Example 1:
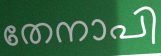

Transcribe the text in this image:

തേനാപി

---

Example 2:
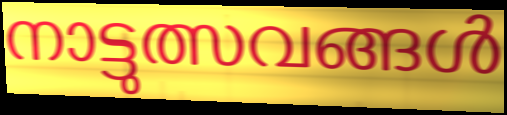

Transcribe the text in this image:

നാട്ടുത്സവങ്ങൾ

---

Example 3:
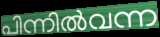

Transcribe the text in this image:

പിന്നിൽവന്ന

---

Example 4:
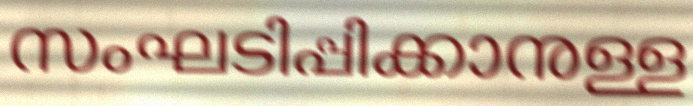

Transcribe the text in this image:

സംഘടിപ്പിക്കാനുള്ള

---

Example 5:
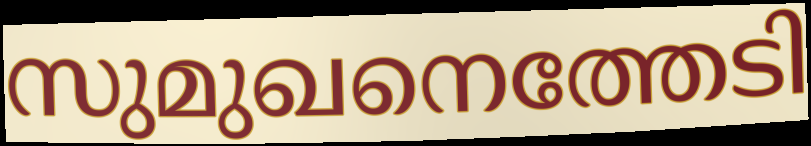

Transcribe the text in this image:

സുമുഖനെത്തേടി